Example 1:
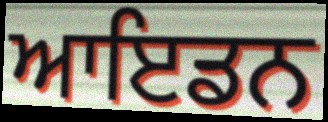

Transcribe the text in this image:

ਆਇਡਨ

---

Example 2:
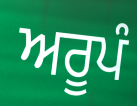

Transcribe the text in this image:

ਅਰੂਪੰ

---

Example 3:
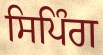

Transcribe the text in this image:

ਸਿਪਿੰਗ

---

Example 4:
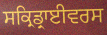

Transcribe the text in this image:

ਸਕ੍ਰਿਡ੍ਰਾਈਵਰਸ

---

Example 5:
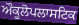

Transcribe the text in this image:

ਔਕੂਲੋਪਲਾਸਟਿਕ